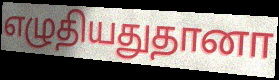
எழுதியதுதானா